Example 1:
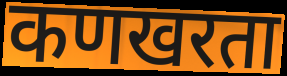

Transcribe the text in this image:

कणखरता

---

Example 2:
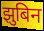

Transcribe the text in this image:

झुबिन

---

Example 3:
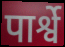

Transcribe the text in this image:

पार्श्वे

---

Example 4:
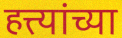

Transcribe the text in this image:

हत्त्यांच्या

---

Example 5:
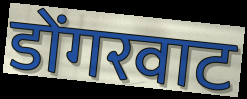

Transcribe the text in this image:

डोंगरवाट